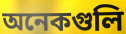
অনেকগুলি